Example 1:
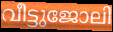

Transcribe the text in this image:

വീട്ടുജോലി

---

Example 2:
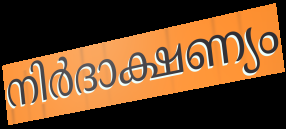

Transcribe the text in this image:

നിർദാക്ഷണ്യം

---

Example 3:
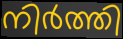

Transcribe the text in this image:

നിർത്തി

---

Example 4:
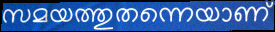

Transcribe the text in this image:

സമയത്തുതന്നെയാണ്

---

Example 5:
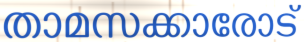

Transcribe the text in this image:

താമസക്കാരോട്